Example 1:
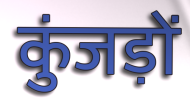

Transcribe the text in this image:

कुंजड़ों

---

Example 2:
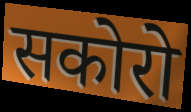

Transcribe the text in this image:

सकोरो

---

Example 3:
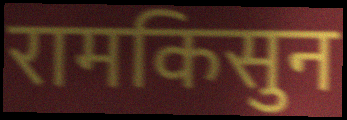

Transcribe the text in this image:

रामकिसुन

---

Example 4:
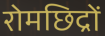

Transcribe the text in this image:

रोमछिद्रों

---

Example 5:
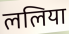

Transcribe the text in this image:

ललिया